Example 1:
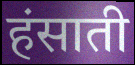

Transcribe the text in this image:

हंसाती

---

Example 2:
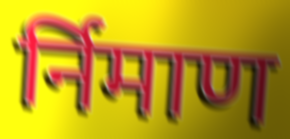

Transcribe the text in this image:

र्निमाण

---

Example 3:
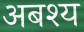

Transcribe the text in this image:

अबश्य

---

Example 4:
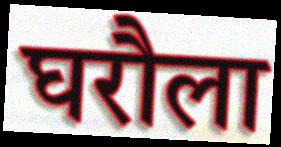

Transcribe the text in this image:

घरौला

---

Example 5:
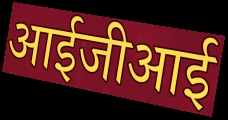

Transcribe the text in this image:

आईजीआई